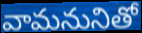
వామనునితో